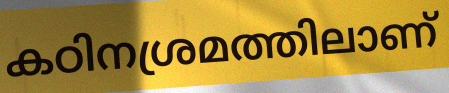
കഠിനശ്രമത്തിലാണ്